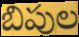
బిపుల